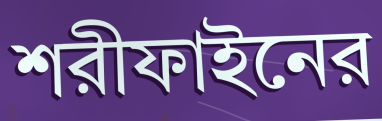
শরীফাইনের